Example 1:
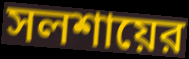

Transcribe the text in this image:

সলশায়ের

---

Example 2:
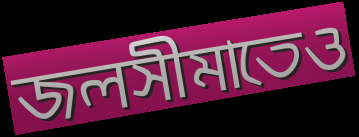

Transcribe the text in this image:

জলসীমাতেও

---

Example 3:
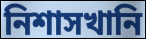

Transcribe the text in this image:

নিশাসখানি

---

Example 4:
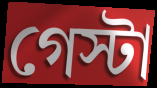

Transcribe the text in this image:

গেস্টা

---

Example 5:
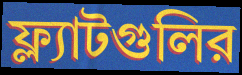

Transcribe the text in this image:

ফ্ল্যাটগুলির